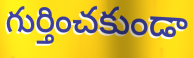
గుర్తించకుండా